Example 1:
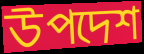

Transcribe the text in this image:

উপদেশ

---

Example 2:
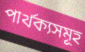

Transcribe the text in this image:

পাৰ্থক্যসমূহ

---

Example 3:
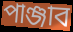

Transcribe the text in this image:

পাঞ্জাব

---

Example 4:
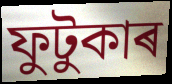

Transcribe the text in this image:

ফুটুকাৰ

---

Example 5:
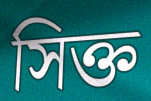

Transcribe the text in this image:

সিক্ত